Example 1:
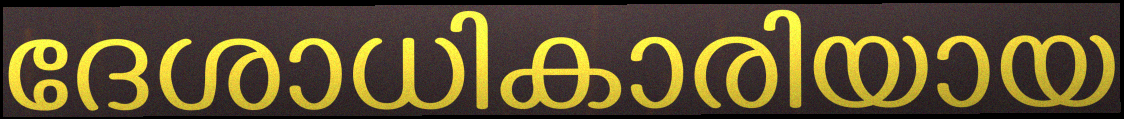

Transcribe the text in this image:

ദേശാധികാരിയായ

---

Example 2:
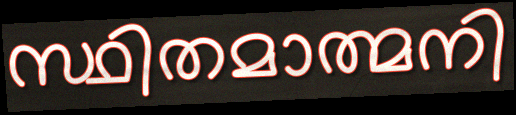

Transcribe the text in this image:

സ്ഥിതമാത്മനി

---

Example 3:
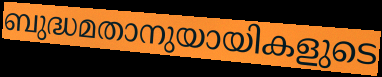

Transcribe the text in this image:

ബുദ്ധമതാനുയായികളുടെ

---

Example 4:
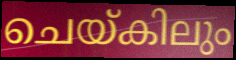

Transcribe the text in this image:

ചെയ്കിലും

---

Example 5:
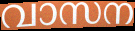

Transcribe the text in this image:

വാസന